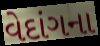
વેદાંગના